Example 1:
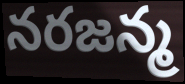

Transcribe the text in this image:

నరజన్మ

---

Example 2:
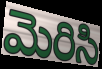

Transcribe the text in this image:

మెరిసి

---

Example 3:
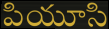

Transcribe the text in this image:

పియూసి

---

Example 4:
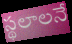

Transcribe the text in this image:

స్థలాలనే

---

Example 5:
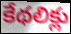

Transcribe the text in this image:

కేథలిక్లు